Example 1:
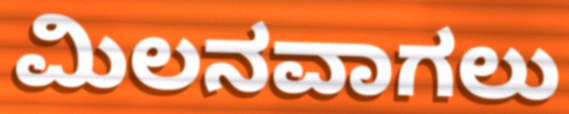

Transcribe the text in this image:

ಮಿಲನವಾಗಲು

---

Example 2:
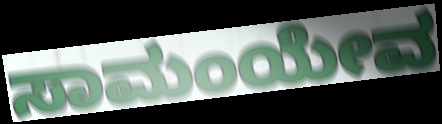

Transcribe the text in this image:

ಸಾಮಂಯೇವ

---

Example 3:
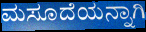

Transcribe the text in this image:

ಮಸೂದೆಯನ್ನಾಗಿ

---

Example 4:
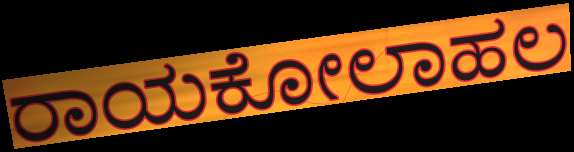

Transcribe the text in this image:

ರಾಯಕೋಲಾಹಲ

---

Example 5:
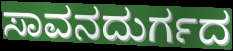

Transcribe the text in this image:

ಸಾವನದುರ್ಗದ